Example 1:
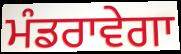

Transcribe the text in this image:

ਮੰਡਰਾਵੇਗਾ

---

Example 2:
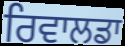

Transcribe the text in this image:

ਰਿਵਾਲਡਾ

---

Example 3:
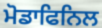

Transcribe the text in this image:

ਮੋਡਾਫਿਨਿਲ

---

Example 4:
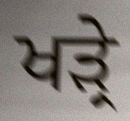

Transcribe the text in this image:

ਖੜ੍ਰੇ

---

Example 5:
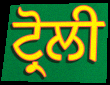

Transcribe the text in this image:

ਟ੍ਰੋਲੀ